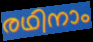
രഥിനാം